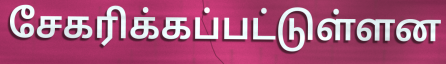
சேகரிக்கப்பட்டுள்ளன